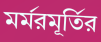
মর্মরমূর্তির